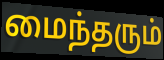
மைந்தரும்